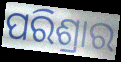
ପରିଶ୍ରାର